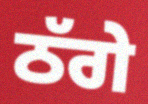
ਠੱਗੇ